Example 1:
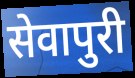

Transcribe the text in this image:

सेवापुरी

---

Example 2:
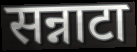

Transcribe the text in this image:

सन्नाटा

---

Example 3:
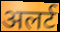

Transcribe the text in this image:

अलर्ट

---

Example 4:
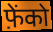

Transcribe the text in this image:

फ़ेंको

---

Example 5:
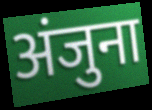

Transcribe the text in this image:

अंजुना